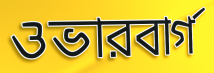
ওভারবার্গ